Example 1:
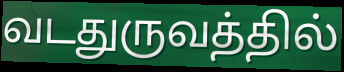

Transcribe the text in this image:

வடதுருவத்தில்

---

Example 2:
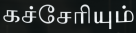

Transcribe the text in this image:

கச்சேரியும்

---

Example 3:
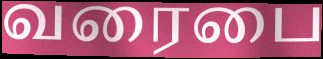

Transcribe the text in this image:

வரைபை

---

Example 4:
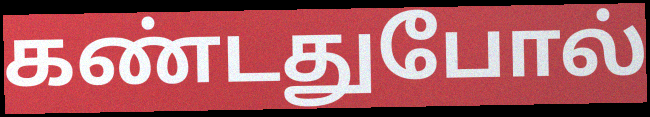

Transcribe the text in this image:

கண்டதுபோல்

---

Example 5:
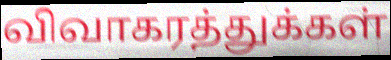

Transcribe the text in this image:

விவாகரத்துக்கள்